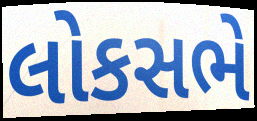
લોકસભે